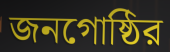
জনগোষ্ঠির